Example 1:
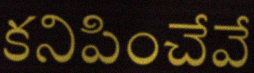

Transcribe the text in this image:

కనిపించేవే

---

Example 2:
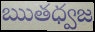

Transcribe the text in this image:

ఋతధ్వజ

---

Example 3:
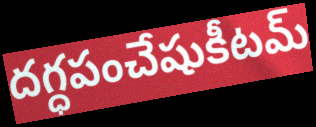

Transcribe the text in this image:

దగ్ధపంచేషుకీటమ్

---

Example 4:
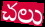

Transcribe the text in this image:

చలు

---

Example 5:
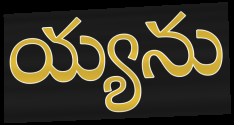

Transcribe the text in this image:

య్యను